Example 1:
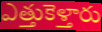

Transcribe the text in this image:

ఎత్తుకెళ్తారు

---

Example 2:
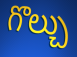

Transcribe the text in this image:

గొల్చు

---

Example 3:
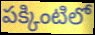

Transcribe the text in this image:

పక్కింటిలో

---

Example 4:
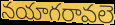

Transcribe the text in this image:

నయాగరావలె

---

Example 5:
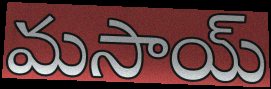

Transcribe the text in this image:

మసాయ్